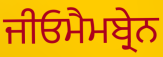
ਜੀਓਮੈਮਬ੍ਰੇਨ